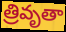
త్రివృతా